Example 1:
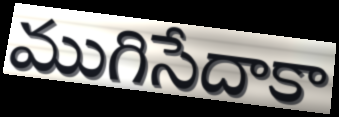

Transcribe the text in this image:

ముగిసేదాకా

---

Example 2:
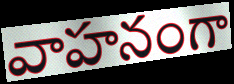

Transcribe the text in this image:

వాహనంగా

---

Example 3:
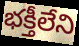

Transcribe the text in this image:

భక్తీలేని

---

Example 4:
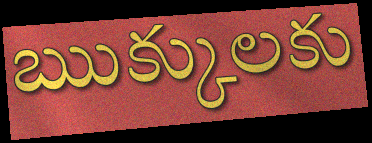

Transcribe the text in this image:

ఋక్కులకు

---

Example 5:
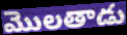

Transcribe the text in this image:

మొలతాడు